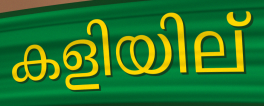
കളിയില്